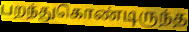
பறந்துகொண்டிருந்த